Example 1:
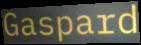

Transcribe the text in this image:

Gaspard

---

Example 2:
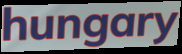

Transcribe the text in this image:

hungary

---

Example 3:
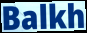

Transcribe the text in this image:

Balkh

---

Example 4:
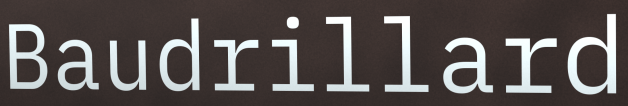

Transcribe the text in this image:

Baudrillard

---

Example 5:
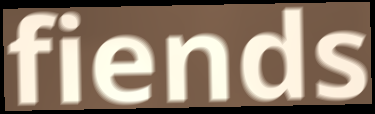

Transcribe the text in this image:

fiends